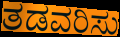
ತಡವರಿಸು